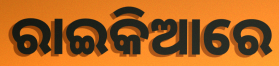
ରାଇକିଆରେ